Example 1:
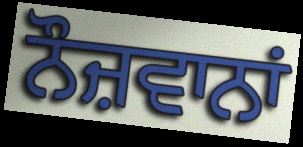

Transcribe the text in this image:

ਨੌਜ਼ਵਾਨਾਂ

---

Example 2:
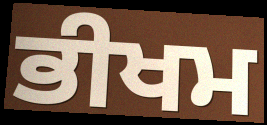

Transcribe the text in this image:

ਭੀਖਮ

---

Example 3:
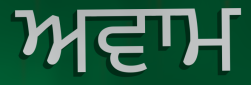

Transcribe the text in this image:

ਅਵਾਮ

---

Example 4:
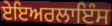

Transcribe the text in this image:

ਏਇਅਰਲਾਇੰਸ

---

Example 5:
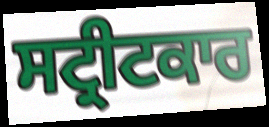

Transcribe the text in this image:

ਸਟ੍ਰੀਟਕਾਰ